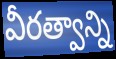
వీరత్వాన్ని